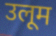
उलूम